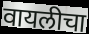
वायलीचा